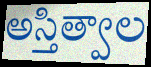
అస్తిత్వాల